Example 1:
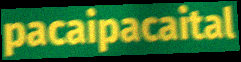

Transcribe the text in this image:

pacaipacaital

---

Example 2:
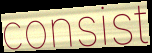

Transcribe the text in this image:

consist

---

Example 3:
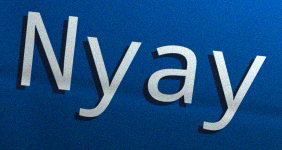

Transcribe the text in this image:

Nyay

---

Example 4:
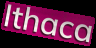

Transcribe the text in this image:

Ithaca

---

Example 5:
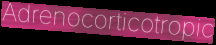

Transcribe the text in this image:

Adrenocorticotropic